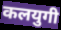
कलयुगी